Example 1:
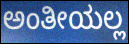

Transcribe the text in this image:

ಅಂತೀಯಲ್ಲ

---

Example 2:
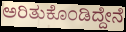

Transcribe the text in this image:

ಅರಿತುಕೊಂಡಿದ್ದೇನೆ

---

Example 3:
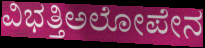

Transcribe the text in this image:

ವಿಭತ್ತಿಅಲೋಪೇನ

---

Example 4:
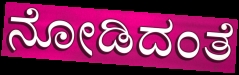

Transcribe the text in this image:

ನೋಡಿದಂತೆ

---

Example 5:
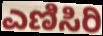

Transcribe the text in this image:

ಎಣಿಸಿರಿ